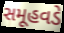
સમૂહવડે